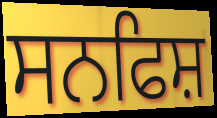
ਸਨਫਿਸ਼